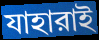
যাহারাই